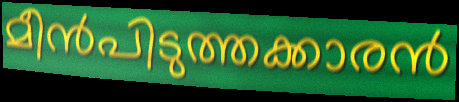
മീൻപിടുത്തക്കാരൻ